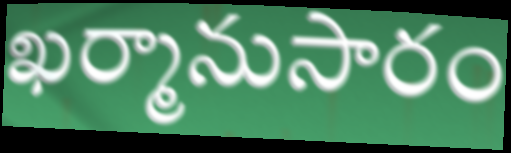
ఖర్మానుసారం